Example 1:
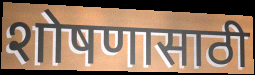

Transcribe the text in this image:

शोषणासाठी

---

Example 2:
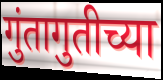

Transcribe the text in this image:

गुंतागुतीच्या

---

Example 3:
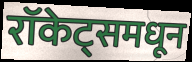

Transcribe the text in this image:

रॉकेट्समधून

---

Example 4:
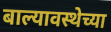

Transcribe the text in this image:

बाल्यावस्थेच्या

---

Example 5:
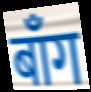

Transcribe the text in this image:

बाँग